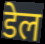
डेल